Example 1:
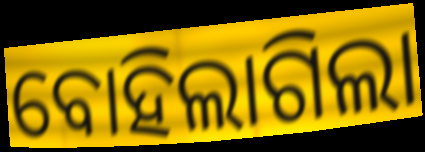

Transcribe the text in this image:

ବୋହିଲାଗିଲା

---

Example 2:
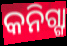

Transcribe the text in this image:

କନିଗ୍ଗା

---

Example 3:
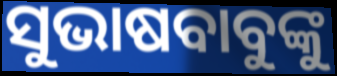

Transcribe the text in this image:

ସୁଭାଷବାବୁଙ୍କୁ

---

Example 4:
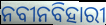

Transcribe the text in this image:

ନବୀନବିହାରୀ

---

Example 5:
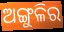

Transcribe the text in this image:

ଅଙ୍ଗୁଳିର